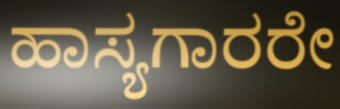
ಹಾಸ್ಯಗಾರರೇ